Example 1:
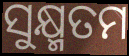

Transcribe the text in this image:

ସୁକ୍ଷ୍ମତମ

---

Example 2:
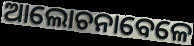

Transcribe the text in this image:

ଆଲୋଚନାବେଳେ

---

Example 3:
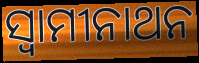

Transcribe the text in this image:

ସ୍ୱାମୀନାଥନ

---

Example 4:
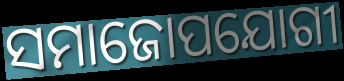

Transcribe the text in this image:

ସମାଜୋପଯୋଗୀ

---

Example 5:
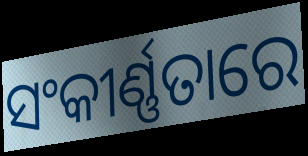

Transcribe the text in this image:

ସଂକୀର୍ଣ୍ଣତାରେ